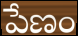
పేణం